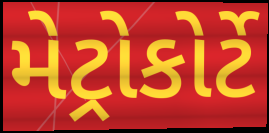
મેટ્રોકોર્ટે